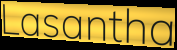
Lasantha